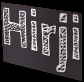
Hirji